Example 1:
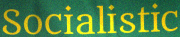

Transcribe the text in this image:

Socialistic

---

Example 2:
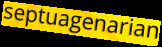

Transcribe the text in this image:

septuagenarian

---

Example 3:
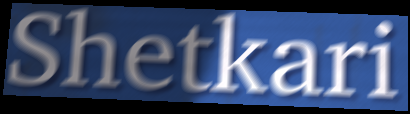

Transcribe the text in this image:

Shetkari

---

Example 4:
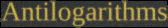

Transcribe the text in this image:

Antilogarithms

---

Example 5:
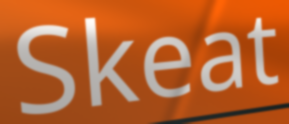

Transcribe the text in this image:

Skeat